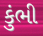
કુંભી